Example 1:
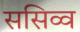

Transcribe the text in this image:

ससिव्व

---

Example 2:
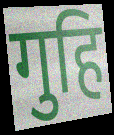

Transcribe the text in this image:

गुहि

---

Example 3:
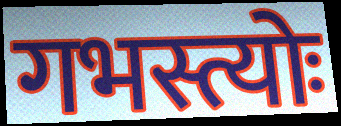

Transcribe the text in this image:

गभस्त्योः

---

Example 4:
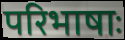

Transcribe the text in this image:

परिभाषाः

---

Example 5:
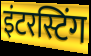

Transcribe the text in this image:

इंटरस्टिंग